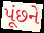
પૂંછને